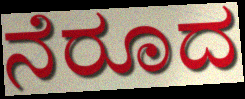
ನೆರೂದ